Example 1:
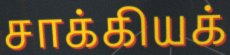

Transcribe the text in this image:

சாக்கியக்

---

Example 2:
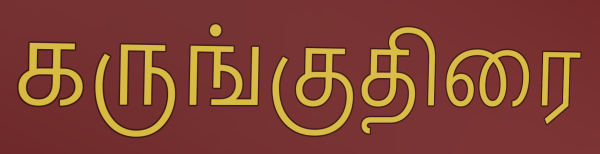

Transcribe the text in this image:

கருங்குதிரை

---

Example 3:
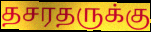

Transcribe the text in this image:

தசரதருக்கு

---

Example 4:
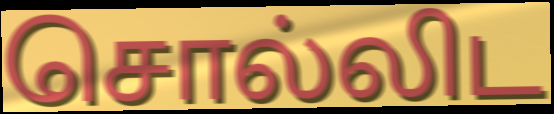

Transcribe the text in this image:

சொல்லிட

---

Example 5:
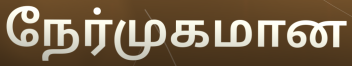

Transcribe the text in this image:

நேர்முகமான